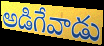
అడిగేవాడు